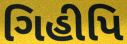
ગિહીપિ